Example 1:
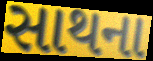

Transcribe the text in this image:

સાથના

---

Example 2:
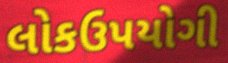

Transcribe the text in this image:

લોકઉપયોગી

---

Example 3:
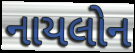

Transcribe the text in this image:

નાયલોન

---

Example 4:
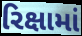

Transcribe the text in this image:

રિક્ષામાં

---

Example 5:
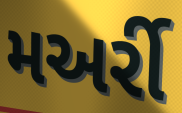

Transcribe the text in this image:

મઅર્રી